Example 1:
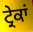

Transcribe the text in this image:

ਟ੍ਰੇਕਾਂ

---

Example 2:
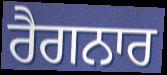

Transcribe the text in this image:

ਰੈਗਨਾਰ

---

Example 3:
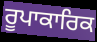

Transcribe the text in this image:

ਰੂਪਾਕਾਰਿਕ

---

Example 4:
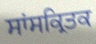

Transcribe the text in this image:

ਸਾਂਸਕ੍ਰਿਤਕ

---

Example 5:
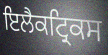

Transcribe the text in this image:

ਇਲੈਕਟ੍ਰਿਕਸ